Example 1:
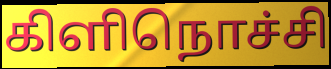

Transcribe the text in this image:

கிளிநொச்சி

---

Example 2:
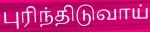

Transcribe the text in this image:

புரிந்திடுவாய்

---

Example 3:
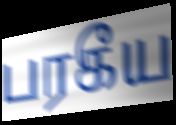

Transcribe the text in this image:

பரகீய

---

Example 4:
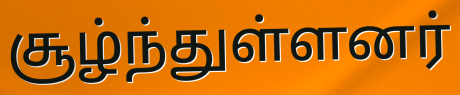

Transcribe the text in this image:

சூழ்ந்துள்ளனர்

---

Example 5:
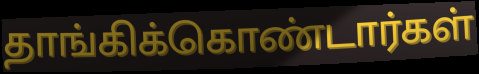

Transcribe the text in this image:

தாங்கிக்கொண்டார்கள்